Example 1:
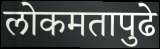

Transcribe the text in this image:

लोकमतापुढे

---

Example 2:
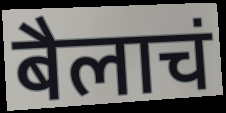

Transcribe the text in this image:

बैलाचं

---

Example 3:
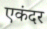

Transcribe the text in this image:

एकंदर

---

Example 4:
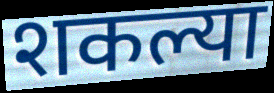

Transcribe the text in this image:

शकल्या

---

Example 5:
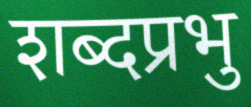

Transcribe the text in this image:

शब्दप्रभु